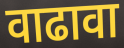
वाढावा